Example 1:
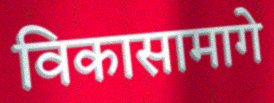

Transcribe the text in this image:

विकासामागे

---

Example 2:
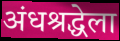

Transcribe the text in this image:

अंधश्रद्धेला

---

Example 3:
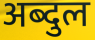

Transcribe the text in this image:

अब्दुल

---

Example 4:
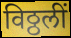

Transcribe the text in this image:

विठ्ठलीं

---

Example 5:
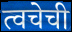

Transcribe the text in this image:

त्वचेची